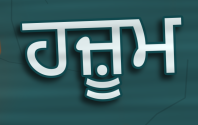
ਹਜ਼ੂਮ